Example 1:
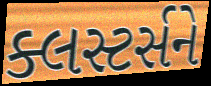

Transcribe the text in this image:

ક્લસ્ટર્સને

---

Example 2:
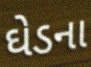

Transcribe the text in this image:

ઘેડના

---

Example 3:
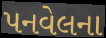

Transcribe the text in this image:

પનવેલના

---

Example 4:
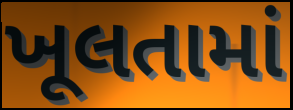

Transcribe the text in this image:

ખૂલતામાં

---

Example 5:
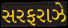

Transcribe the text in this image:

સરફરાઝે